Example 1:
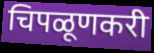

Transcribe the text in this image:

चिपळूणकरी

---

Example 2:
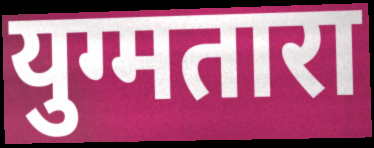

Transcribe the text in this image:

युग्मतारा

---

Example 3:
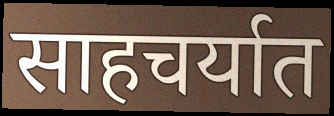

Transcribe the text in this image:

साहचर्यात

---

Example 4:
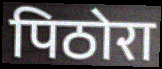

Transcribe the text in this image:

पिठोरा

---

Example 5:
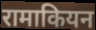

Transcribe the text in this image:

रामाकियन